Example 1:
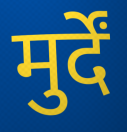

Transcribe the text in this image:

मुर्दें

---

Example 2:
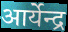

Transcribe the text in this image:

आर्येन्द्र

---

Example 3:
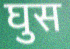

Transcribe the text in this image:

घुस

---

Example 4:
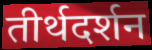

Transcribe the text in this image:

तीर्थदर्शन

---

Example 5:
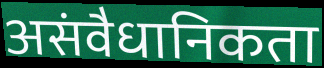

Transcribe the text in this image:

असंवैधानिकता